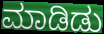
ಮಾಡಿಡು